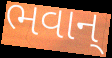
ભવાન્